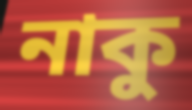
নাকু